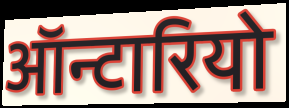
ऑन्टारियो